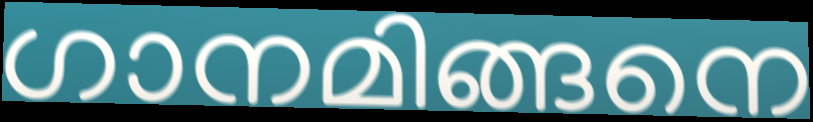
ഗാനമിങ്ങനെ